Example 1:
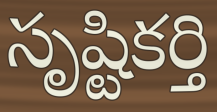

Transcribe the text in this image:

సృష్టికర్తి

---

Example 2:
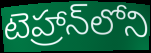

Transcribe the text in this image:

టెహ్రాన్‌లోని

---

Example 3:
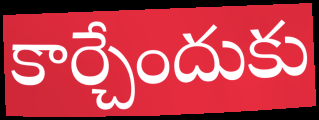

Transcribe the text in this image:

కార్చేందుకు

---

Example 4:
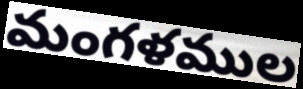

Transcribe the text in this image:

మంగళముల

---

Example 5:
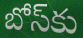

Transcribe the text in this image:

బోస్‌కు